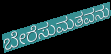
ಬೇರೆಸುಮತವನು